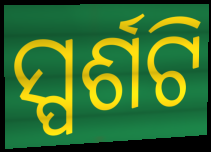
ସ୍ପର୍ଶଟି